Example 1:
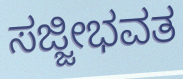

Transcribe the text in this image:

ಸಜ್ಜೀಭವತ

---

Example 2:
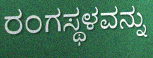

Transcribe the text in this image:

ರಂಗಸ್ಥಳವನ್ನು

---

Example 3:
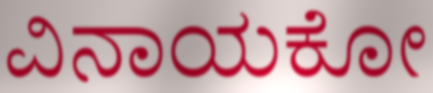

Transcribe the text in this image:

ವಿನಾಯಕೋ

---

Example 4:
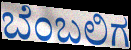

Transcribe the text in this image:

ಬೆಂಬಲಿಗ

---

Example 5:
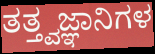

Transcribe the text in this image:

ತತ್ತ್ವಜ್ಞಾನಿಗಳ